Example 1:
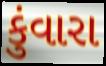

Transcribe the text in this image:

કુંવારા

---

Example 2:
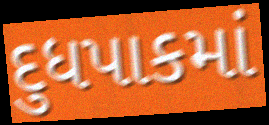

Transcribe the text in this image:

દુધપાકમાં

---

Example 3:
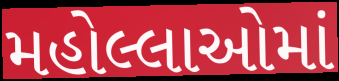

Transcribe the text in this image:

મહોલ્લાઓમાં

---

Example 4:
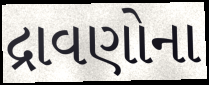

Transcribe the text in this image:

દ્રાવણોના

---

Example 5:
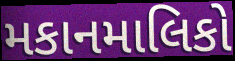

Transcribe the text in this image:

મકાનમાલિકો